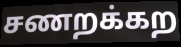
சணறக்கற